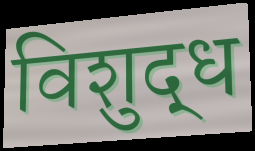
विशुद्ध